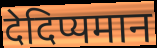
देदिप्यमान